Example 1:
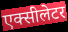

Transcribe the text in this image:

एक्सीलेटर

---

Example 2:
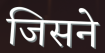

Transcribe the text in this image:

जिसने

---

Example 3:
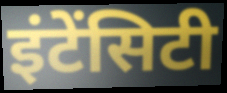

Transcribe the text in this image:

इंटेंसिटी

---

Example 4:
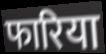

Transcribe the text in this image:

फारिया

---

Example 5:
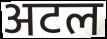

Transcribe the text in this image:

अटल